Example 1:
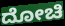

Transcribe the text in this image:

ದೋಚಿ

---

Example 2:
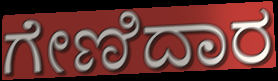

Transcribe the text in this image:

ಗೇಣಿದಾರ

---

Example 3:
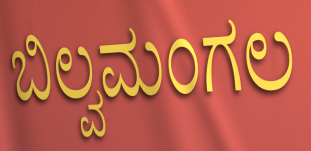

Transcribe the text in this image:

ಬಿಲ್ವಮಂಗಲ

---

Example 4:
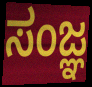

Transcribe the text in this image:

ಸಂಜ್ಞ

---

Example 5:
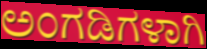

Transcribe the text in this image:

ಅಂಗಡಿಗಳಾಗಿ